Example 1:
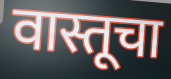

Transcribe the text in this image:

वास्तूचा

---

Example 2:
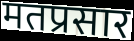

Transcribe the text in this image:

मतप्रसार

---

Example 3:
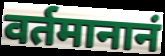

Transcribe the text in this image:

वर्तमानानं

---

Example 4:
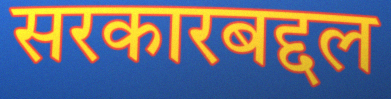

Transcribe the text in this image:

सरकारबद्दल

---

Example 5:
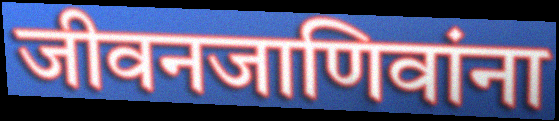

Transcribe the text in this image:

जीवनजाणिवांना